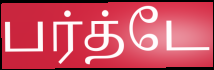
பர்த்டே